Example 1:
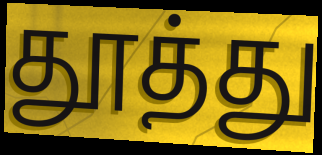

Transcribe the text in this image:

தூத்து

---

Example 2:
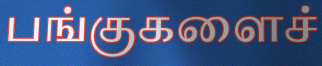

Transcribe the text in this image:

பங்குகளைச்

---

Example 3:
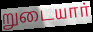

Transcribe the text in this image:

றுடையார்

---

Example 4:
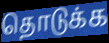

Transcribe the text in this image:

தொடுக்க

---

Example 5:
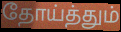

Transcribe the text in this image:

தோய்த்தும்